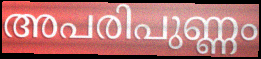
അപരിപുണ്ണം